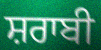
ਸ਼ਰਾਬੀ